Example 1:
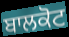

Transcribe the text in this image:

ਬਾਲਕੋਟ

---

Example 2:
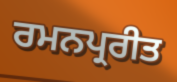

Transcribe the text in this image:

ਰਮਨਪ੍ਰਰੀਤ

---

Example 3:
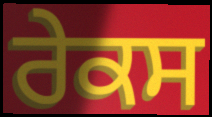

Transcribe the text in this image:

ਰੇਕਸ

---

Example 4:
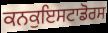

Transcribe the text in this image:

ਕਨਕੁਇਸਟਾਡੋਰਸ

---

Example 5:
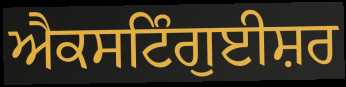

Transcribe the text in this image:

ਐਕਸਟਿੰਗੁਈਸ਼ਰ